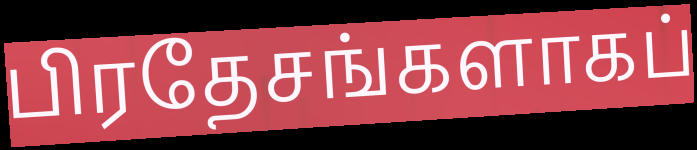
பிரதேசங்களாகப்